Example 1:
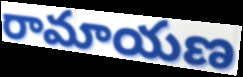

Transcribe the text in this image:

రామాయణ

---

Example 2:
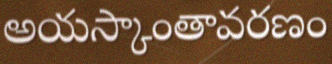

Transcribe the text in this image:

అయస్కాంతావరణం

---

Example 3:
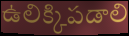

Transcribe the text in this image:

ఉలిక్కిపడాలి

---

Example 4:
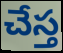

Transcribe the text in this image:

చేస్త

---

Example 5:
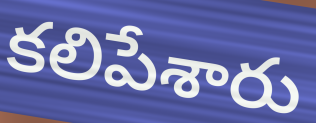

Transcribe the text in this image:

కలిపేశారు